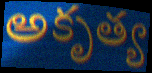
అకృత్య